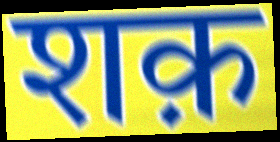
शक़